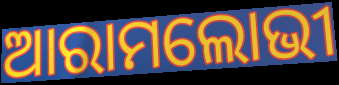
ଆରାମଲୋଭୀ